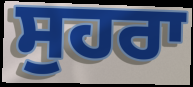
ਸੁਹਰਾ